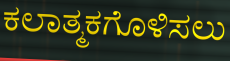
ಕಲಾತ್ಮಕಗೊಳಿಸಲು